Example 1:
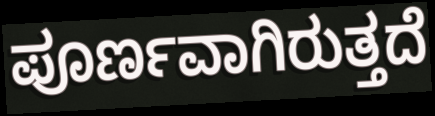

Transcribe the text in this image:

ಪೂರ್ಣವಾಗಿರುತ್ತದೆ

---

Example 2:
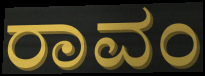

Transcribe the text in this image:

ರಾವಂ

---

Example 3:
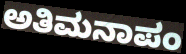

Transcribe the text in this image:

ಅತಿಮನಾಪಂ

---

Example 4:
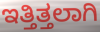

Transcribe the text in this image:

ಇತ್ತಿತ್ತಲಾಗಿ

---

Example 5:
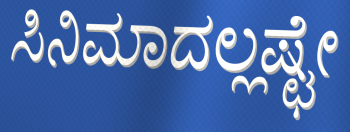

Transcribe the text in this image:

ಸಿನಿಮಾದಲ್ಲಷ್ಟೇ